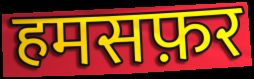
हमसफ़र